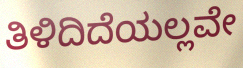
ತಿಳಿದಿದೆಯಲ್ಲವೇ